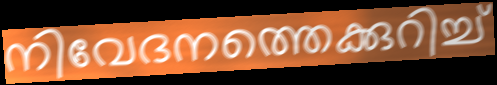
നിവേദനത്തെക്കുറിച്ച്